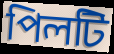
পিলটি